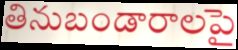
తినుబండారాలపై